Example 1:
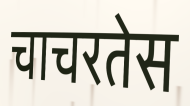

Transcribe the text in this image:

चाचरतेस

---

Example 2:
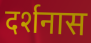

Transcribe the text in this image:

दर्शनास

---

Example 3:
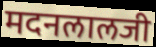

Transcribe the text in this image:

मदनलालजी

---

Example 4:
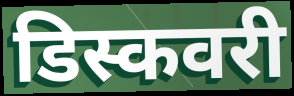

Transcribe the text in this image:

डिस्कवरी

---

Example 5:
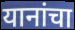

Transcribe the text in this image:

यानांचा